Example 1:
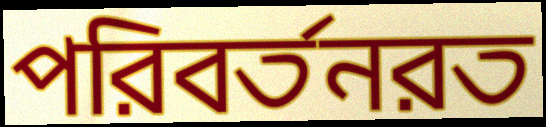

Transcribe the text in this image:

পরিবর্তনরত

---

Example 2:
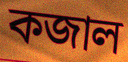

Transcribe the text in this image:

কজাল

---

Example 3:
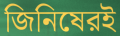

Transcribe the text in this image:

জিনিষেরই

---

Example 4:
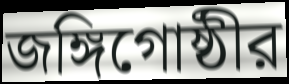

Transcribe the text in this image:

জঙ্গিগোষ্ঠীর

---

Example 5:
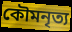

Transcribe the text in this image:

কৌমনৃত্য